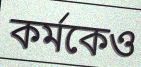
কর্মকেও